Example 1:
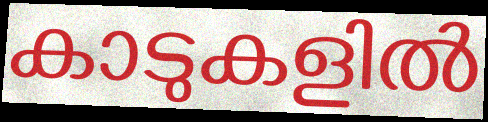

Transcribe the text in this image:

കാടുകളിൽ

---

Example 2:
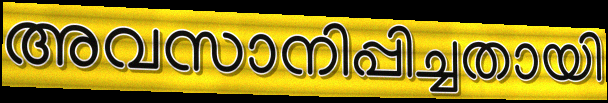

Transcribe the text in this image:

അവസാനിപ്പിച്ചതായി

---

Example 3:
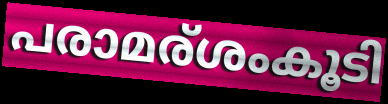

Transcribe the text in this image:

പരാമര്ശംകൂടി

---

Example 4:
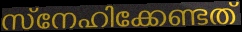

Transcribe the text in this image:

സ്‌നേഹിക്കേണ്ടത്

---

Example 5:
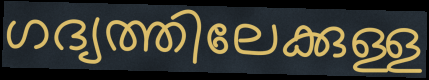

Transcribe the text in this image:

ഗദ്യത്തിലേക്കുള്ള